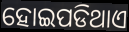
ହୋଇପଡିଥାଏ